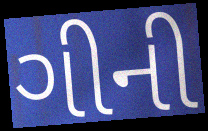
ગીની